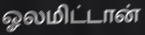
ஓலமிட்டான்